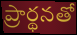
ప్రార్థనతో